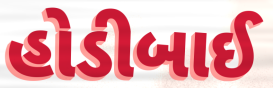
હોડીબાઈ